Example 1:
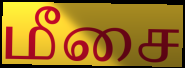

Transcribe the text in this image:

மீசை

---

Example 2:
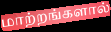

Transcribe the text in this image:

மாற்றங்களால்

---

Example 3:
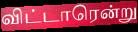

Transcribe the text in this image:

விட்டாரென்று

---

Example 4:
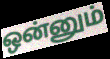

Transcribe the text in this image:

ஒன்னும்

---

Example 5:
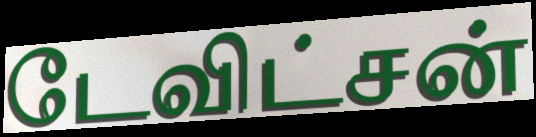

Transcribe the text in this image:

டேவிட்சன்